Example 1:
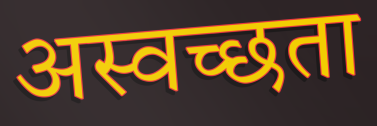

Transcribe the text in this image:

अस्वच्छता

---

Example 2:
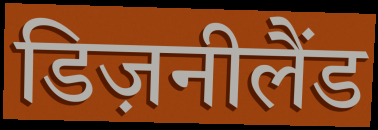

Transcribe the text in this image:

डिज़नीलैंड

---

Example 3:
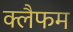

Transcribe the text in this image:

क्लैफम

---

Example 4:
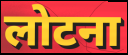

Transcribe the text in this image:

लोटना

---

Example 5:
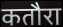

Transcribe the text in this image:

कतौरा